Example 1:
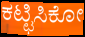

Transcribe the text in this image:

ಕಟ್ಟಿಸಿಕೋ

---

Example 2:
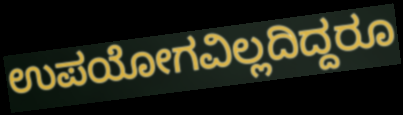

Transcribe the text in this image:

ಉಪಯೋಗವಿಲ್ಲದಿದ್ದರೂ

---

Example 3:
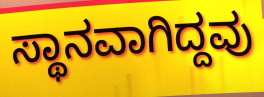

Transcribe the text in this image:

ಸ್ಥಾನವಾಗಿದ್ದವು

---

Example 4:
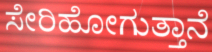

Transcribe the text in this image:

ಸೇರಿಹೋಗುತ್ತಾನೆ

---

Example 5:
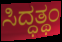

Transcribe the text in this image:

ಸಿದ್ಧತ್ಥಂ